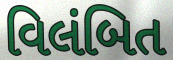
વિલંબિત